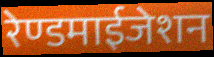
रेण्डमाईजेशन